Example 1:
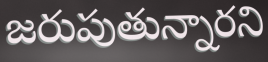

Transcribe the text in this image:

జరుపుతున్నారని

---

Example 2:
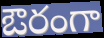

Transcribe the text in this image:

ఔరంగా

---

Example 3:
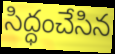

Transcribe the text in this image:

సిద్ధంచేసిన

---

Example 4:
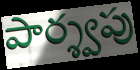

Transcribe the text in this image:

పార్శ్వపు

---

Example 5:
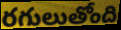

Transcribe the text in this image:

రగులుతోంది